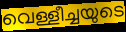
വെള്ളീച്ചയുടെ